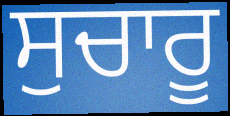
ਸੁਚਾਰੂ